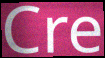
Cre